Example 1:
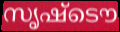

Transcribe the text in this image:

സൃഷ്ടൌ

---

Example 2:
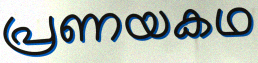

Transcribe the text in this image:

പ്രണയകഥ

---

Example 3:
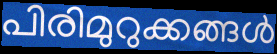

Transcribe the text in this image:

പിരിമുറുക്കങ്ങൾ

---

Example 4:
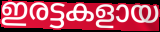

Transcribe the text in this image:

ഇരട്ടകളായ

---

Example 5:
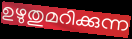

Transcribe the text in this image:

ഉഴുതുമറിക്കുന്ന